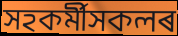
সহকৰ্মীসকলৰ